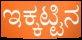
ಇಕ್ಕಟ್ಟಿನ